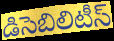
డిసెబిలిటీస్